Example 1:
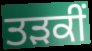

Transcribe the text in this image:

ਤੜਕੀਂ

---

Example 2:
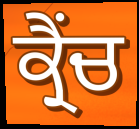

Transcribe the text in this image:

ਕ੍ਰੈਂਚ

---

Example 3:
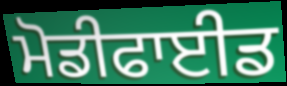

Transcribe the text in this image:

ਮੋਡੀਫਾਈਡ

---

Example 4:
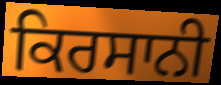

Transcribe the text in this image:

ਕਿਰਸਾਨੀ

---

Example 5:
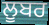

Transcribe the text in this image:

ਲੂਬਰ